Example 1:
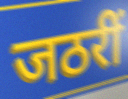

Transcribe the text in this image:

जठरीं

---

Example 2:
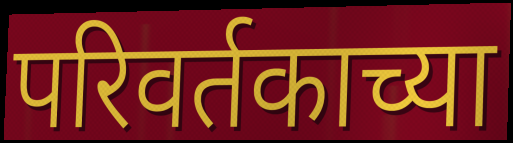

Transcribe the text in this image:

परिवर्तकाच्या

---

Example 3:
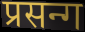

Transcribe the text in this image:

प्रसन्ग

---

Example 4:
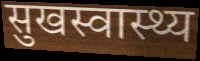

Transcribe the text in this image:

सुखस्वास्थ्य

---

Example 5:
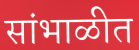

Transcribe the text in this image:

सांभाळीत